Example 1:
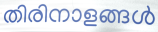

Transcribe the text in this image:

തിരിനാളങ്ങൾ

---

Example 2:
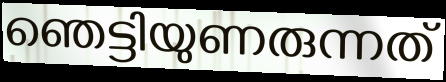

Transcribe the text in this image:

ഞെട്ടിയുണരുന്നത്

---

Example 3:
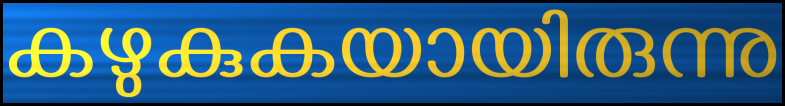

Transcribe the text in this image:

കഴുകുകയായിരുന്നു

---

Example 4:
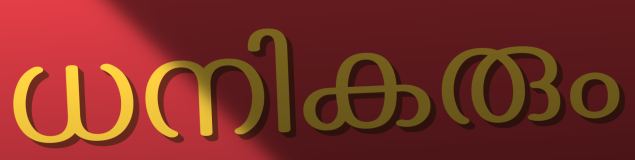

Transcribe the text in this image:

ധനികരും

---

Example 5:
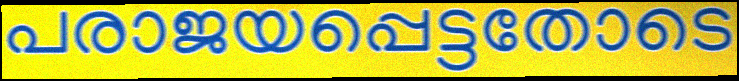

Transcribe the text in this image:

പരാജയപ്പെട്ടതോടെ